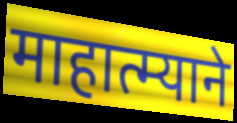
माहात्म्याने